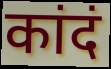
कांदं